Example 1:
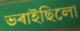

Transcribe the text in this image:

ভৰাইছিলো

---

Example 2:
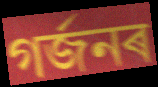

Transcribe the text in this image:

গৰ্জনৰ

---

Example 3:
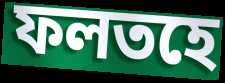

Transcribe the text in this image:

ফলতহে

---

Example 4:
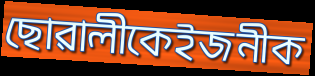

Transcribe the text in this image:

ছোৱালীকেইজনীক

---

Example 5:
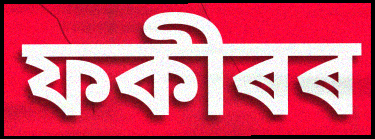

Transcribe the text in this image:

ফকীৰৰ